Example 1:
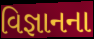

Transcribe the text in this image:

વિજ્ઞાનના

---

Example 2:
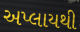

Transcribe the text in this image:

અપ્લાયથી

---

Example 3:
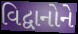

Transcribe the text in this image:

વિદ્વાનોને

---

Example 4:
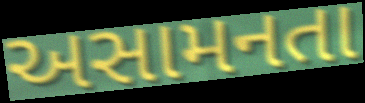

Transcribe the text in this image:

અસામનતા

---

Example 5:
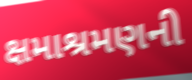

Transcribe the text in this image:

ક્ષમાશ્રમણની